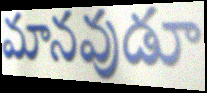
మానవుడూ